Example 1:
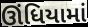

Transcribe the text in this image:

ઊંધિયામાં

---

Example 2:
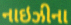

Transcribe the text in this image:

નાઇઝીના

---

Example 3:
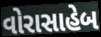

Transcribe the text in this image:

વોરાસાહેબ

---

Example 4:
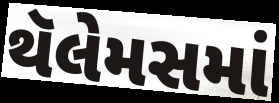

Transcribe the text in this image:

થૅલેમસમાં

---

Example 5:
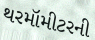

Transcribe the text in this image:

થરમૉમીટરની